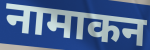
नामाकन